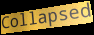
Collapsed